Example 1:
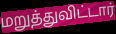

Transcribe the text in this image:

மறுத்துவிட்டார்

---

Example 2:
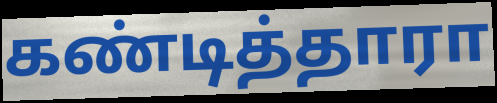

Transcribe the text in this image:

கண்டித்தாரா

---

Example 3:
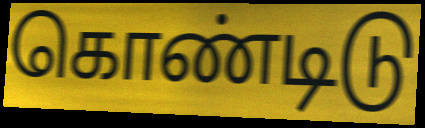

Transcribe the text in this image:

கொண்டிடு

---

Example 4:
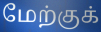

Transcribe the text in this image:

மேற்குக்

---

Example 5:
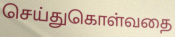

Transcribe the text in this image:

செய்துகொள்வதை